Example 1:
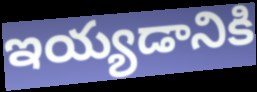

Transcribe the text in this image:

ఇయ్యడానికి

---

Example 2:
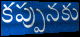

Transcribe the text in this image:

కప్పునకు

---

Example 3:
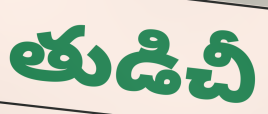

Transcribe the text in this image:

తుడిచీ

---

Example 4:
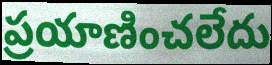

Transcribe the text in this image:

ప్రయాణించలేదు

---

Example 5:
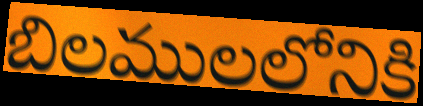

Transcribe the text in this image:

బిలములలోనికి